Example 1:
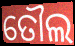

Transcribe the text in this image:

ତୌଲ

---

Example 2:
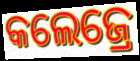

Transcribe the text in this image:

କଲେଜ୍ରେ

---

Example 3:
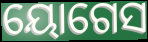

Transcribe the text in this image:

ୟୋଗେସ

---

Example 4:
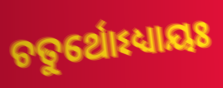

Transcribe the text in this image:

ଚତୁର୍ଥୋଽଧ୍ୟାୟଃ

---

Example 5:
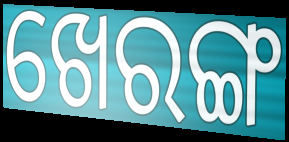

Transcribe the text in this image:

ଖେରଙ୍ଗ